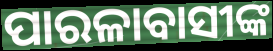
ପାରଳାବାସୀଙ୍କ